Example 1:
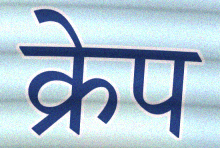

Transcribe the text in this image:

क्रेप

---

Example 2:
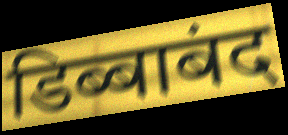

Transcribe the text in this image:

डिब्बाबंद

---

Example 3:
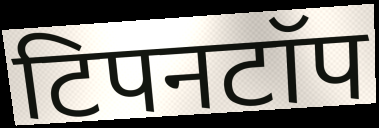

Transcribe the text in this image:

टिपनटॉप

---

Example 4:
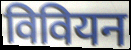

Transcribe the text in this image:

विवियन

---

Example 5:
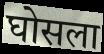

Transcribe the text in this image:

घोसला